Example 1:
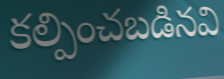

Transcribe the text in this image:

కల్పించబడినవి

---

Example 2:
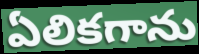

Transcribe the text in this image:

ఏలికగాను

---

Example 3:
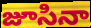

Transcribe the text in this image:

జూసినా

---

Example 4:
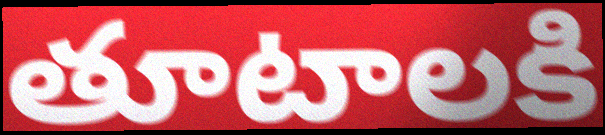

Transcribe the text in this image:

తూటాలకి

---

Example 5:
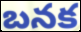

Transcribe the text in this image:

బనక